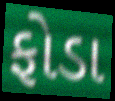
ફોડા